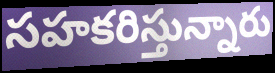
సహకరిస్తున్నారు